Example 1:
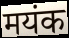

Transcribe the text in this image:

मयंक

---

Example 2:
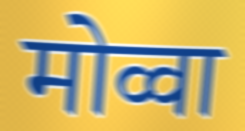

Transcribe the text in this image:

मोव्वा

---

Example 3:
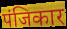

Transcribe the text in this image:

पंजिकार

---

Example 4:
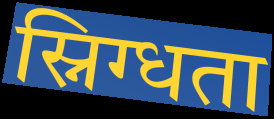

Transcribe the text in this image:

स्निग्धता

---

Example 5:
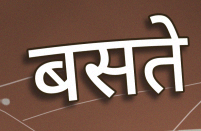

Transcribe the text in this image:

बसते